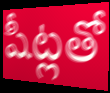
షీట్లతో